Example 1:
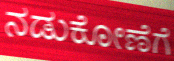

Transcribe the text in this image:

ನಡುಕೋಣೆಗೆ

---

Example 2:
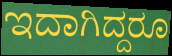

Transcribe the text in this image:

ಇದಾಗಿದ್ದರೂ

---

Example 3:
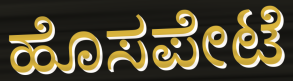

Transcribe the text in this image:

ಹೊಸಪೇಟೆ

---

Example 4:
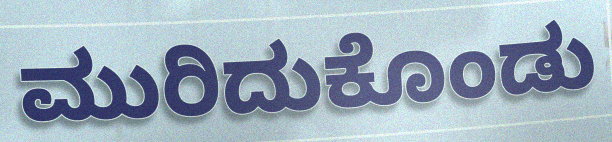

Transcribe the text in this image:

ಮುರಿದುಕೊಂಡು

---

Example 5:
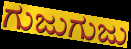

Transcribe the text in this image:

ಗುಜುಗುಜು